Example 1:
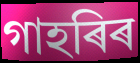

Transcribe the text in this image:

গাহৰিৰ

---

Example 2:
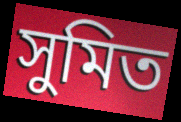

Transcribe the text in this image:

সুমিত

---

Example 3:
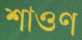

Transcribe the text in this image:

শাওণ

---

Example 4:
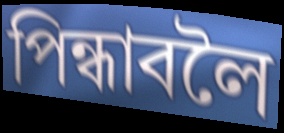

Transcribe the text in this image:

পিন্ধাবলৈ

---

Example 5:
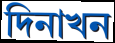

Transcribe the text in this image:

দিনাখন